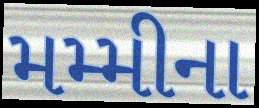
મમ્મીના